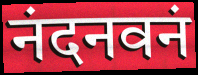
नंदनवनं